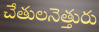
చేతులనెత్తురు